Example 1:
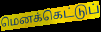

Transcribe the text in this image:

மெனக்கெட்டுப்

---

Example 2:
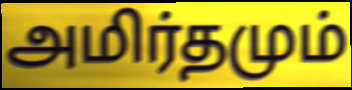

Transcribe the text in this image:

அமிர்தமும்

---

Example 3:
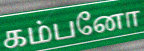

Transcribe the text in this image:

கம்பனோ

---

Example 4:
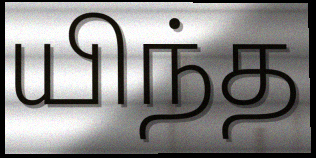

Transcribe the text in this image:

யிந்த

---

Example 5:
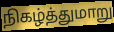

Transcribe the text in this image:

நிகழ்த்துமாறு